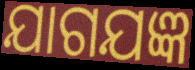
ଯାଗଯଜ୍ଞ